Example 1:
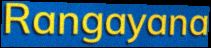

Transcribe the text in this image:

Rangayana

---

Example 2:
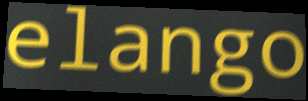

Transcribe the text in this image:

elango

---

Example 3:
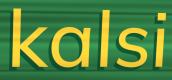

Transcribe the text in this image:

kalsi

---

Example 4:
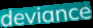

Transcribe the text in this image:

deviance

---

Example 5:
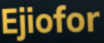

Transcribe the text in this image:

Ejiofor